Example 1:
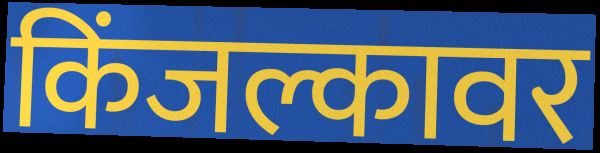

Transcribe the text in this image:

किंजल्कावर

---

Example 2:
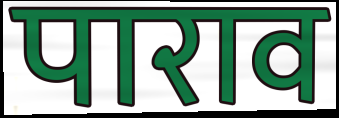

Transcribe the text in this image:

पाराव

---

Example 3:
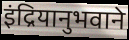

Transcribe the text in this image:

इंद्रियानुभवाने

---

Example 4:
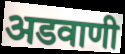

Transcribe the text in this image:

अडवाणी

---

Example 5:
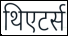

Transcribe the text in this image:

थिएटर्स